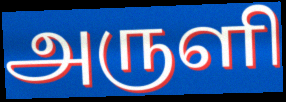
அருளி